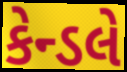
કેન્ડલે